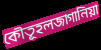
কৌতূহলজাগানিয়া